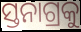
ସ୍ତନାଗ୍ରକୁ